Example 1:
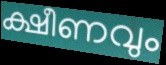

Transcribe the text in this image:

ക്ഷീണവും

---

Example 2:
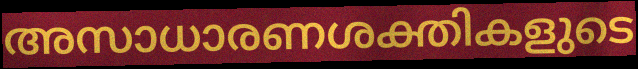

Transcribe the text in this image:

അസാധാരണശക്തികളുടെ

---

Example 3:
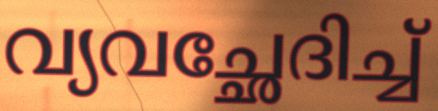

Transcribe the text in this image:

വ്യവച്ഛേദിച്ച്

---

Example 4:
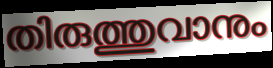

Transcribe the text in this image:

തിരുത്തുവാനും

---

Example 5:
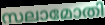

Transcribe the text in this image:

സലാമോതി